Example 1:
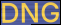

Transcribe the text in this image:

DNG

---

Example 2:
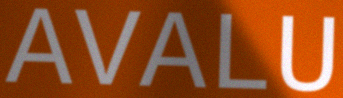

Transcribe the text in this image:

AVALU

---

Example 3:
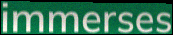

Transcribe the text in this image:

immerses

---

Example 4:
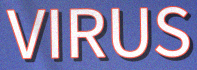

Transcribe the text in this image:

VIRUS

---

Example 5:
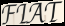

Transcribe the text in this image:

FIAT